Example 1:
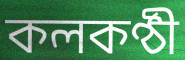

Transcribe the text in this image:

কলকণ্ঠী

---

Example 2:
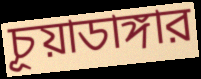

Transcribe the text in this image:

চূয়াডাঙ্গার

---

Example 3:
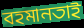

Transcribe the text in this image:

বহমানতাই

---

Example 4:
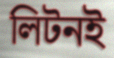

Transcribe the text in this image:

লিটনই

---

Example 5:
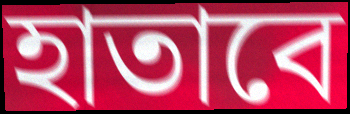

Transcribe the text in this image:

হাতাবে